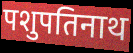
पशुपतिनाथ